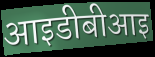
आइडीबीआइ